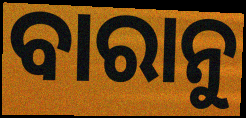
ବାରାନୁ